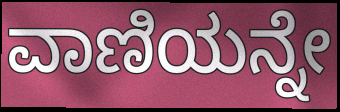
ವಾಣಿಯನ್ನೇ